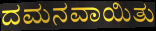
ದಮನವಾಯಿತು